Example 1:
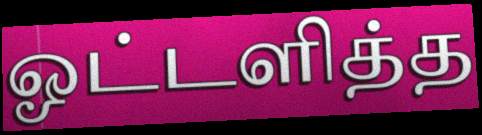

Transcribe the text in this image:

ஓட்டளித்த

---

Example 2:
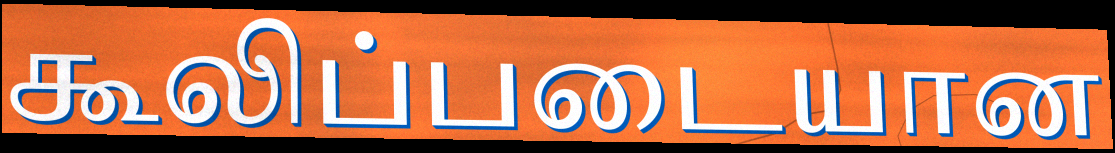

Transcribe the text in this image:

கூலிப்படையான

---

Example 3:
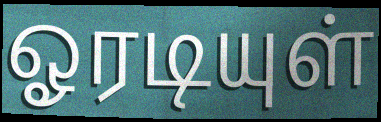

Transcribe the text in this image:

ஓரடியுள்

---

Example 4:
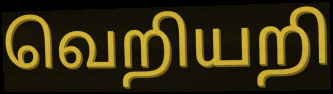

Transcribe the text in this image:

வெறியறி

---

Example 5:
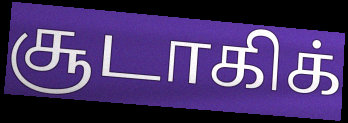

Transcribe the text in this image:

சூடாகிக்